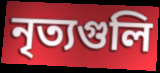
নৃত্যগুলি